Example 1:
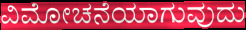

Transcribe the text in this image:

ವಿಮೋಚನೆಯಾಗುವುದು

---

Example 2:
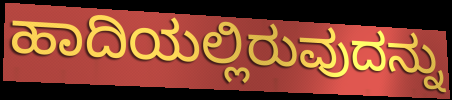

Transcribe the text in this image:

ಹಾದಿಯಲ್ಲಿರುವುದನ್ನು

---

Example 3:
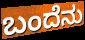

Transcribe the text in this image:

ಬಂದೆನು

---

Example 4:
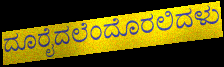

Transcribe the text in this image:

ದೂರೈದಲೆಂದೊರಲಿದಳು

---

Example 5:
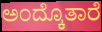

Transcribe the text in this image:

ಅಂದ್ಕೊತಾರೆ